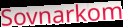
Sovnarkom